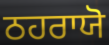
ਠਹਰਾਯੋ